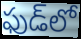
ఫుడ్‌లో